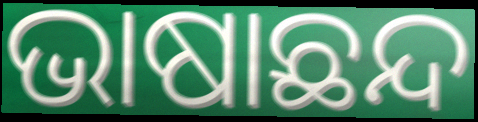
ଭାଷାଛନ୍ଦ